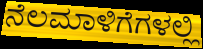
ನೆಲಮಾಳಿಗೆಗಳಲ್ಲಿ